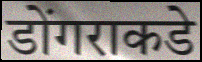
डोंगराकडे